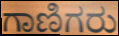
ಗಾಣಿಗರು